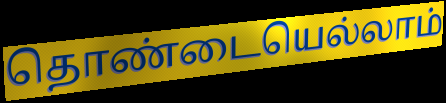
தொண்டையெல்லாம்